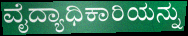
ವೈದ್ಯಾಧಿಕಾರಿಯನ್ನು